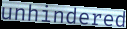
unhindered